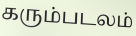
கரும்படலம்